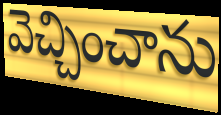
వెచ్చించాను